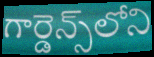
గార్డెన్స్‌లోని